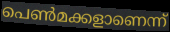
പെൺമക്കളാണെന്ന്